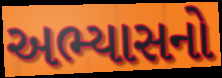
અભ્યાસનો